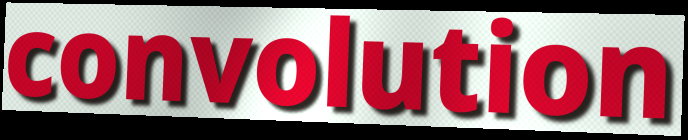
convolution